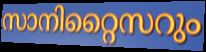
സാനിറ്റൈസറും